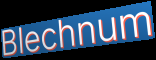
Blechnum